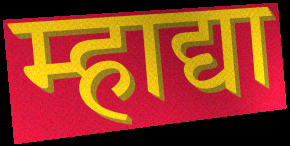
म्हाद्या